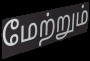
மேற்றும்